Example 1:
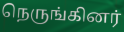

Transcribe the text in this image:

நெருங்கினர்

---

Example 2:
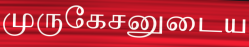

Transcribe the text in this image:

முருகேசனுடைய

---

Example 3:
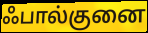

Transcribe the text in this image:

ஃபால்குனை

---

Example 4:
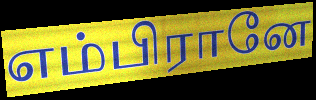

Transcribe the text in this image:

எம்பிரானே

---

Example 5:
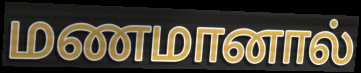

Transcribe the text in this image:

மணமானால்